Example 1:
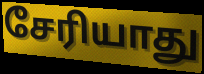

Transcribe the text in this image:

சேரியாது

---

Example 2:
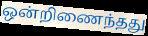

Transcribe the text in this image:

ஒன்றிணைந்தது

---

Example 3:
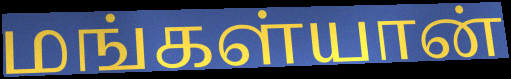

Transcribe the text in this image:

மங்கள்யான்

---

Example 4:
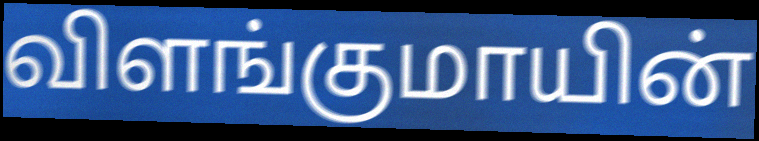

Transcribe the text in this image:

விளங்குமாயின்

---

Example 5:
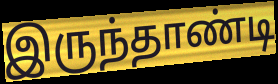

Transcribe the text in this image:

இருந்தாண்டி